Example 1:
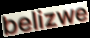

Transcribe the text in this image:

belizwe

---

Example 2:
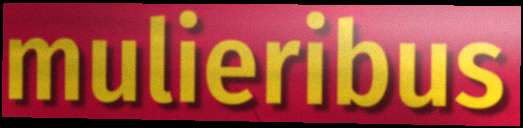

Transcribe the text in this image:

mulieribus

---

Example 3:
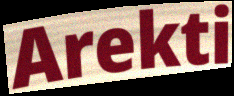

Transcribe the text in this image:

Arekti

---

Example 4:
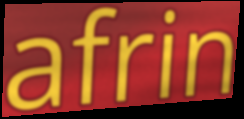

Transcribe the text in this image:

afrin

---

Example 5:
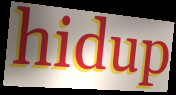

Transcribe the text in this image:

hidup